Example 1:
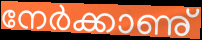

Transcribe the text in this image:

നേർക്കാണു്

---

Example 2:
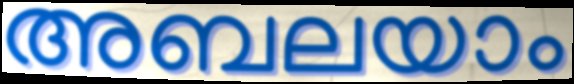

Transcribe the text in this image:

അബലയാം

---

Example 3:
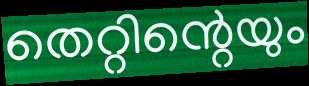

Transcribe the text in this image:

തെറ്റിന്റെയും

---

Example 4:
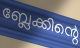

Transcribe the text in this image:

ബ്ലേക്കിന്റെ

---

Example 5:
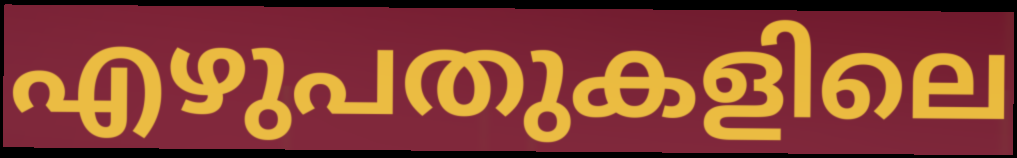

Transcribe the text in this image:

എഴുപതുകളിലെ